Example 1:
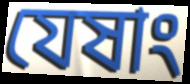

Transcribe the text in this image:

যেষাং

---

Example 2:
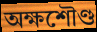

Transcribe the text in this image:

অক্ষশৌণ্ড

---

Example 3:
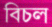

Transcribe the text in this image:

বিচল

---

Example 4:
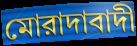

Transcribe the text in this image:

মোরাদাবাদী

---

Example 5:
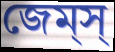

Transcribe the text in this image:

জেম্স্